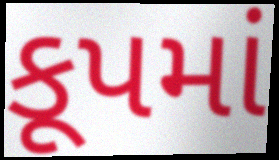
કૂપમાં